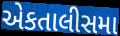
એકતાલીસમા